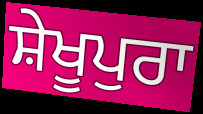
ਸ਼ੇਖੂਪੁਰਾ